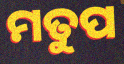
ମତୁପ